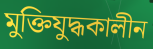
মুক্তিযুদ্ধকালীন